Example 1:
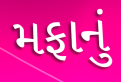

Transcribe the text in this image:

મફાનું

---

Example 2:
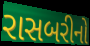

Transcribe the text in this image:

રાસબરીનો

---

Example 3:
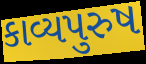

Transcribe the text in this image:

કાવ્યપુરુષ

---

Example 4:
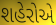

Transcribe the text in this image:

શહેરોએ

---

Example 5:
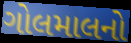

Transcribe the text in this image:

ગોલમાલનો